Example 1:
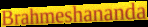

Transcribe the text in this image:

Brahmeshananda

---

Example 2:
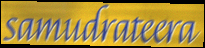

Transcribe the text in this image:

samudrateera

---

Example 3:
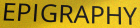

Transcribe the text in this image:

EPIGRAPHY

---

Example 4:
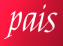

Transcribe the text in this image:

pais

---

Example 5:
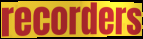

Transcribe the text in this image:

recorders